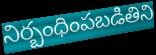
నిర్బంధింపబడితిని